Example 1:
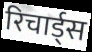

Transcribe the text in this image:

रिचार्ड्स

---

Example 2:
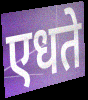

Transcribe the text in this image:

एधते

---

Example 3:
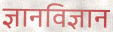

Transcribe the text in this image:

ज्ञानविज्ञान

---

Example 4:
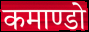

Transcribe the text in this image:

कमाण्डो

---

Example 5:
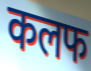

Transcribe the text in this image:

कलफ